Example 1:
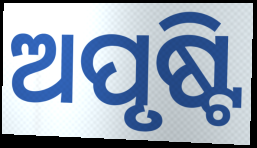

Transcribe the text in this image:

ଅପୃଷ୍ଟି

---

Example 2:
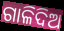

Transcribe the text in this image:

ଗାଳିଦିଅ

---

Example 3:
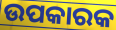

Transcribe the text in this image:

ଉପକାରକ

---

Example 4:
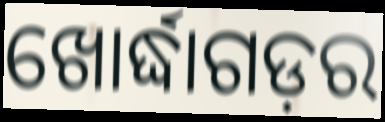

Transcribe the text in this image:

ଖୋର୍ଦ୍ଧାଗଡ଼ର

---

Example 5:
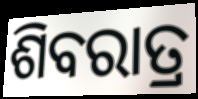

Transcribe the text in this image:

ଶିବରାତ୍ର